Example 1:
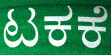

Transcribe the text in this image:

ಟಕಕೆ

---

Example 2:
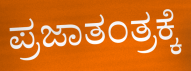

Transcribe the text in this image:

ಪ್ರಜಾತಂತ್ರಕ್ಕೆ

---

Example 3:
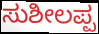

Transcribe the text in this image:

ಸುಶೀಲಪ್ಪ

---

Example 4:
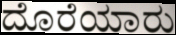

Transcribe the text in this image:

ದೊರೆಯಾರು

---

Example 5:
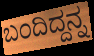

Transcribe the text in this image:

ಬಂದಿದ್ದನ್ನ